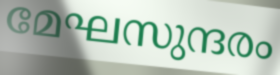
മേഘസുന്ദരം